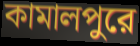
কামালপুরে